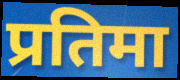
प्रतिमा